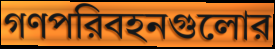
গণপরিবহনগুলোর